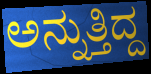
ಅನ್ನುತ್ತಿದ್ದ